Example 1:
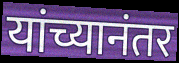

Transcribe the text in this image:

यांच्यानंतर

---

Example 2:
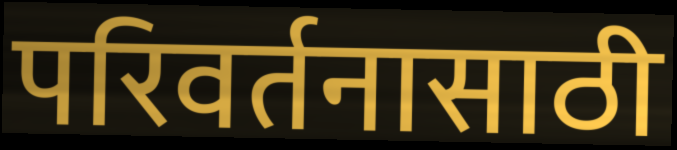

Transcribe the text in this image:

परिवर्तनासाठी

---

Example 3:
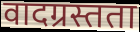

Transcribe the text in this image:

वादग्रस्तता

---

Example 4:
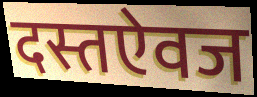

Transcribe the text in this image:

दस्तऐवज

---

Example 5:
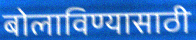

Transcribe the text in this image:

बोलाविण्यासाठी